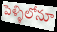
పెళ్ళిలోనూ